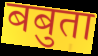
बबुता